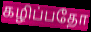
கழிப்பதோ